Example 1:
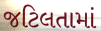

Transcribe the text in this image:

જટિલતામાં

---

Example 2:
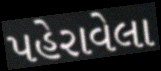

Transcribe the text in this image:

પહેરાવેલા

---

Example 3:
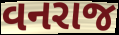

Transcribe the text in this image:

વનરાજ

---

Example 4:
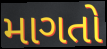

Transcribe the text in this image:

માગતો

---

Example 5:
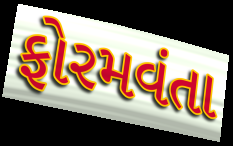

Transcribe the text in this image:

ફોરમવંતા